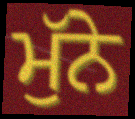
ਮੁੱਨੇ